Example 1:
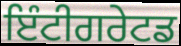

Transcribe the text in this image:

ਇੰਟੀਗਰੇਟਡ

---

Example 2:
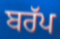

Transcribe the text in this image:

ਬਰੱਪ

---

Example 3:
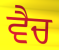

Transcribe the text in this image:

ਵੈਚ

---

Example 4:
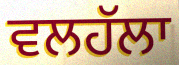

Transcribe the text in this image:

ਵਲਹੱਲਾ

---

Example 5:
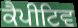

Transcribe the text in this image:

ਕੈਪੀਟਿਵ